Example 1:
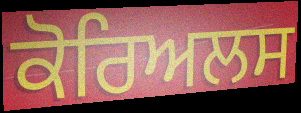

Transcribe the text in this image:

ਕੋਰਿਅਲਸ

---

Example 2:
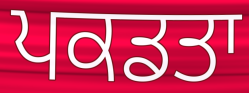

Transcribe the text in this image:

ਪਕਡਤਾ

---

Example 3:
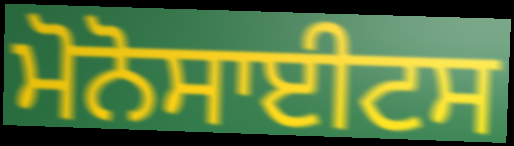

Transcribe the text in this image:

ਮੋਨੋਸਾਈਟਸ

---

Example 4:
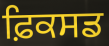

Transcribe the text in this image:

ਫ਼ਿਕਸਡ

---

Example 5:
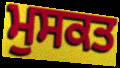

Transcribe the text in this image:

ਮੁਸਕਤ